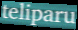
teliparu